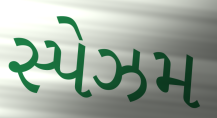
સ્પેઝમ